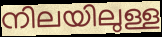
നിലയിലുള്ള